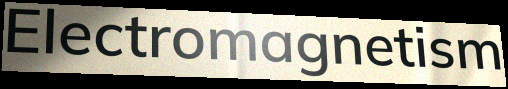
Electromagnetism